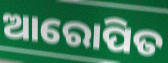
ଆରୋପିତ